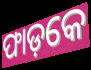
ଫାଡ଼କେ